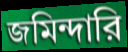
জমিন্দারি